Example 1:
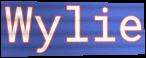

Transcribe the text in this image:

Wylie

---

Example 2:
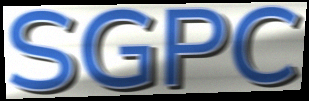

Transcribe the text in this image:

SGPC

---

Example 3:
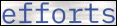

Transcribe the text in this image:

efforts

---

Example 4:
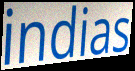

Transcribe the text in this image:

indias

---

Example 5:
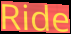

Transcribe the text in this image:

Ride